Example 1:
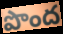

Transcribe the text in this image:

పొంద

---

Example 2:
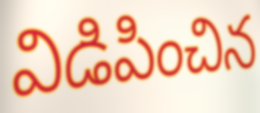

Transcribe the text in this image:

విడిపించిన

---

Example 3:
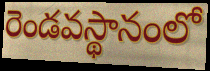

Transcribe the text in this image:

రెండవస్థానంలో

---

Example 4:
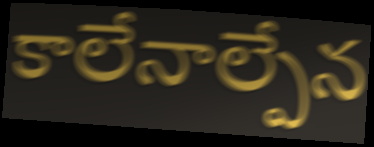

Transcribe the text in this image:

కాలేనాల్పేన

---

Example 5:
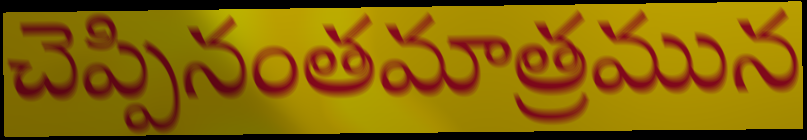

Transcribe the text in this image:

చెప్పినంతమాత్రమున